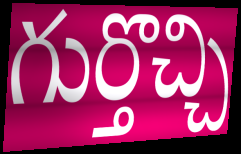
గుర్తొచ్చి